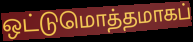
ஒட்டுமொத்தமாகப்